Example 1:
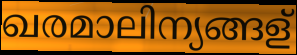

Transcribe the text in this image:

ഖരമാലിന്യങ്ങള്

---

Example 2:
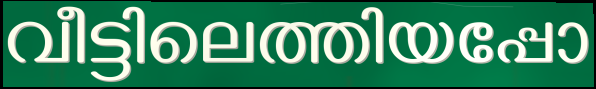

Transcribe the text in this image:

വീട്ടിലെത്തിയപ്പോ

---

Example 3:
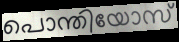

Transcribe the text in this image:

പൊന്തിയോസ്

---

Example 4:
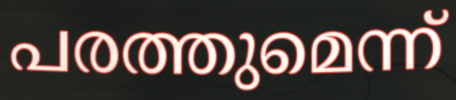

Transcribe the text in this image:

പരത്തുമെന്ന്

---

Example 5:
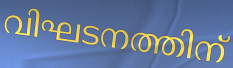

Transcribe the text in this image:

വിഘടനത്തിന്